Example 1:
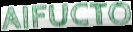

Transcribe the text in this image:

AIFUCTO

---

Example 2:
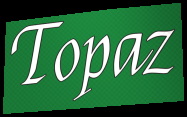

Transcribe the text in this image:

Topaz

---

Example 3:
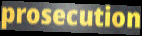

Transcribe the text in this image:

prosecution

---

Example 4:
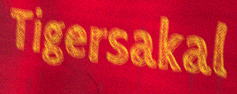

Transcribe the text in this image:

Tigersakal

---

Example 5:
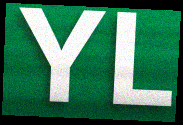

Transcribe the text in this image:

YL